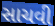
સાચવી